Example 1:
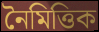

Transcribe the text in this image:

নৈমিত্তিক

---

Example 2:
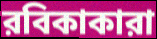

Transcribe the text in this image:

রবিকাকারা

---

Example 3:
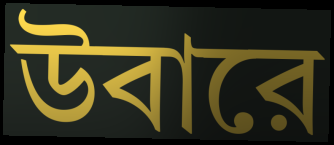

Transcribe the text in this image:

উবারে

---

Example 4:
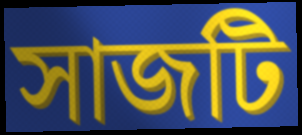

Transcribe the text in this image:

সাজটি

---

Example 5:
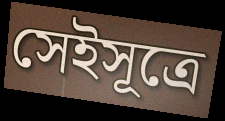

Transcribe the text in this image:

সেইসূত্রে